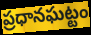
ప్రధానఘట్టం